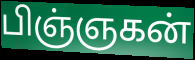
பிஞ்ஞகன்